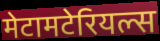
मेटामटेरियल्स